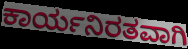
ಕಾರ್ಯನಿರತವಾಗಿ